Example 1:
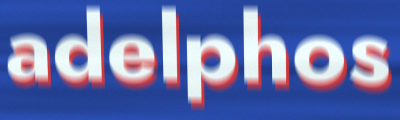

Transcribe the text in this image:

adelphos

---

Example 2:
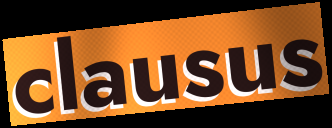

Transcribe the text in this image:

clausus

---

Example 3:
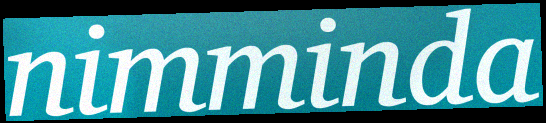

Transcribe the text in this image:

nimminda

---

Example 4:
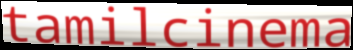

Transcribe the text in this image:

tamilcinema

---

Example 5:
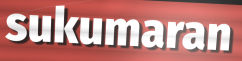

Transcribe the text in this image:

sukumaran